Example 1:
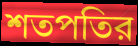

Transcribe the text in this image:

শতপতির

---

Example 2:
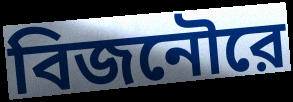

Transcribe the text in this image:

বিজনৌরে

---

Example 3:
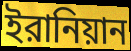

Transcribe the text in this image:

ইরানিয়ান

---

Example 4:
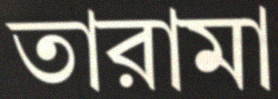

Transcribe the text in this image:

তারামা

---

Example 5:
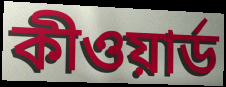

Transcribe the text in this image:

কীওয়ার্ড